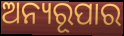
ଅନ୍ୟରୂପାର